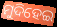
ମୁଦିହେଇ